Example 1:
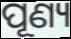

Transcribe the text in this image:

ପୂଣ୍ୟ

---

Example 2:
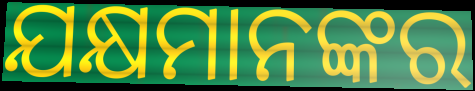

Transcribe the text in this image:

ଯକ୍ଷମାନଙ୍କର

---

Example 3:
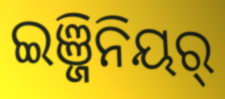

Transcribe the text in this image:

ଇଞ୍ଜିନିୟର୍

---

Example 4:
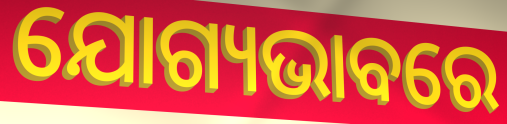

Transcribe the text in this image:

ଯୋଗ୍ୟଭାବରେ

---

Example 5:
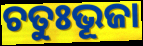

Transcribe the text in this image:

ଚତୁଃଭୂଜା